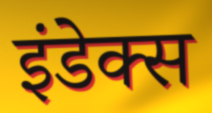
इंडेक्स